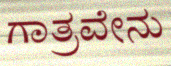
ಗಾತ್ರವೇನು